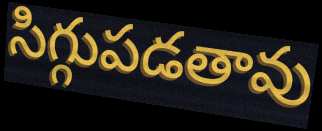
సిగ్గుపడతావు